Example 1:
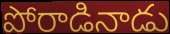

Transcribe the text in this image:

పోరాడినాడు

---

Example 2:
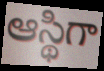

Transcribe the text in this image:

ఆస్థిగా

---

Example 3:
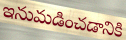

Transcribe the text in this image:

ఇనుమడించడానికి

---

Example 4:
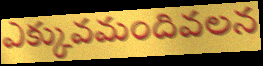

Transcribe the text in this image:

ఎక్కువమందివలన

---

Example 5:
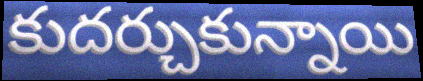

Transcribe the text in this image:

కుదర్చుకున్నాయి